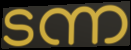
ടന്ന